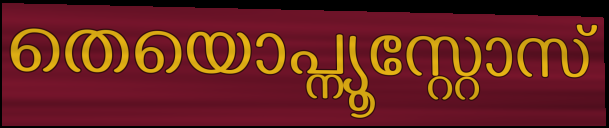
തെയൊപ്ന്യൂസ്റ്റോസ്